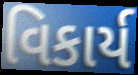
વિકાર્ય